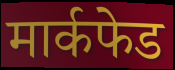
मार्कफेड